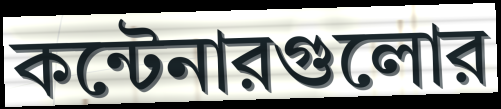
কন্টেনারগুলোর